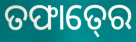
ତଫାତ୍‍ରେ